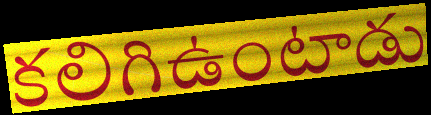
కలిగిఉంటాడు